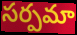
సర్పమా